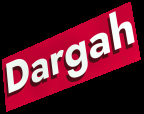
Dargah